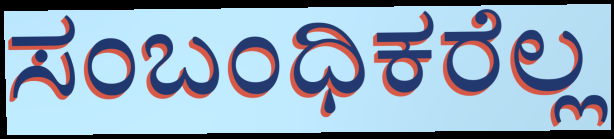
ಸಂಬಂಧಿಕರೆಲ್ಲ